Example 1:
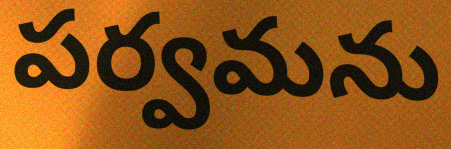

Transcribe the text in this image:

పర్వమను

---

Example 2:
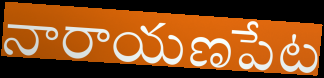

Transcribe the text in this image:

నారాయణపేట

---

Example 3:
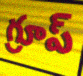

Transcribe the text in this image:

గ్రూప్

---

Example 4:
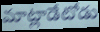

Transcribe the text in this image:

మాట్లాడేటోడు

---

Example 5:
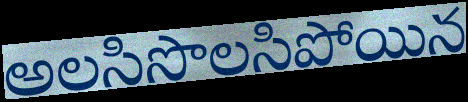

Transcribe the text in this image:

అలసిసొలసిపోయిన